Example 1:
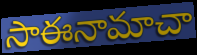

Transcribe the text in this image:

సాఈనామాచా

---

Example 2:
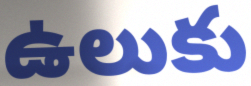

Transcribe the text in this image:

ఉలుకు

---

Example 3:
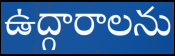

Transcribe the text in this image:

ఉద్గారాలను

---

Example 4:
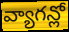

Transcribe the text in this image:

వ్యాగన్లో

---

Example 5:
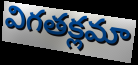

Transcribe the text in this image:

విగతక్లమా